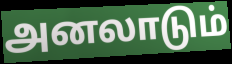
அனலாடும்